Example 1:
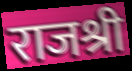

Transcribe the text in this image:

राजश्री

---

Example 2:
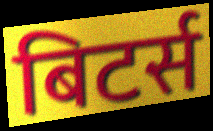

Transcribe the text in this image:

बिटर्स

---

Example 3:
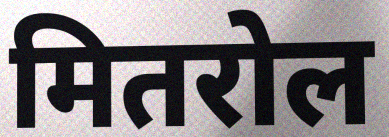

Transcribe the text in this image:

मितरोल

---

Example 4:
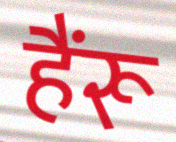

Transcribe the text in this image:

हैंरू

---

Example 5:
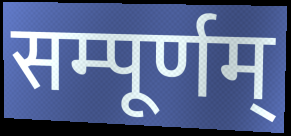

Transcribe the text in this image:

सम्पूर्णम्